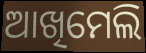
ଆଖିମେଲି